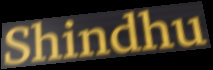
Shindhu